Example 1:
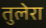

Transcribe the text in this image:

तुलेरा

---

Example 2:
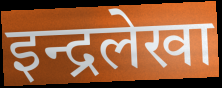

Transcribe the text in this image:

इन्द्रलेखा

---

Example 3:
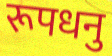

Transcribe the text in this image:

रूपधनु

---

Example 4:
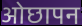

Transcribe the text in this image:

ओछापन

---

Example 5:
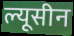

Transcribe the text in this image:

ल्यूसीन